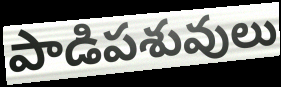
పాడిపశువులు